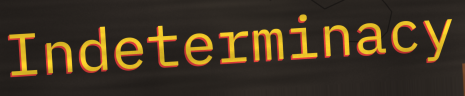
Indeterminacy